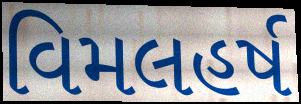
વિમલહર્ષ